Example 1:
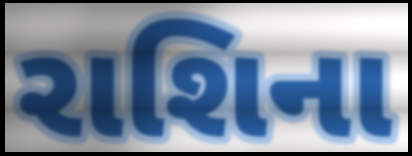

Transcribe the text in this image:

રાશિના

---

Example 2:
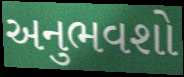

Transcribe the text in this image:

અનુભવશો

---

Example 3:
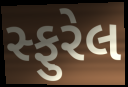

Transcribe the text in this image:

સ્ફુરેલ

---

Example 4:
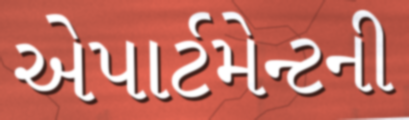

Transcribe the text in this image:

એપાર્ટમેન્ટની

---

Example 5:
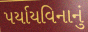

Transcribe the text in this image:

પર્યાયવિનાનું